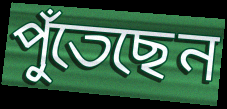
পুঁতেছেন